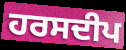
ਹਰਸਦੀਪ